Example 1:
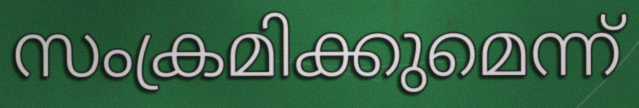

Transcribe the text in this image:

സംക്രമിക്കുമെന്ന്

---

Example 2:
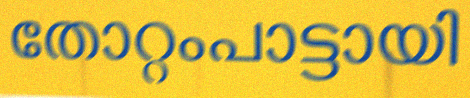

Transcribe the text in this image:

തോറ്റംപാട്ടായി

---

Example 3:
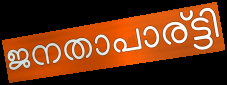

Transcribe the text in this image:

ജനതാപാര്ട്ടി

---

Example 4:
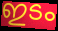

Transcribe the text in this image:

ഇടം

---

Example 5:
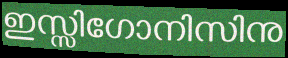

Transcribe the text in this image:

ഇസ്സിഗോനിസിനു